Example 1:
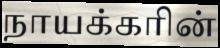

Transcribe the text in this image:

நாயக்கரின்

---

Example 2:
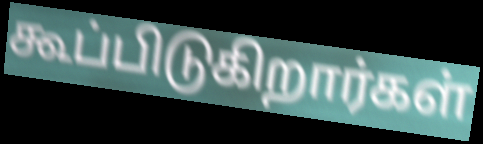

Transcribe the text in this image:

கூப்பிடுகிறார்கள்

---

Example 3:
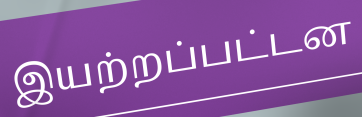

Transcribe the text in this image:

இயற்றப்பட்டன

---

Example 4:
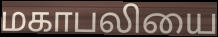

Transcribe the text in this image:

மகாபலியை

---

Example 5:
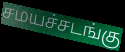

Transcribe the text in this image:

சமயச்சடங்கு